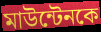
মাউন্টেনকে